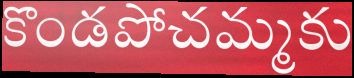
కొండపోచమ్మకు